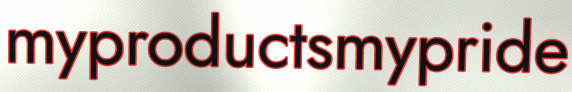
myproductsmypride